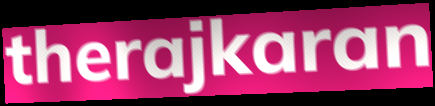
therajkaran